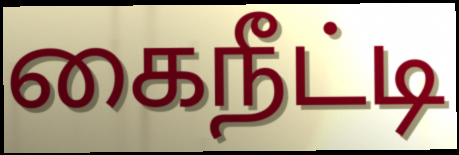
கைநீட்டி